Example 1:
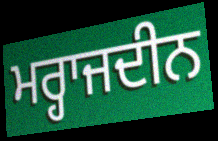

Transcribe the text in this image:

ਮਰ੍ਹਾਜਦੀਨ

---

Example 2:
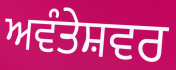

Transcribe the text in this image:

ਅਵੰਤੇਸ਼ਵਰ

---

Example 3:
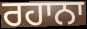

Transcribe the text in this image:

ਰਹਾਨਾ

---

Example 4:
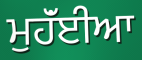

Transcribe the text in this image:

ਮੁਹੱਂਈਆ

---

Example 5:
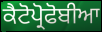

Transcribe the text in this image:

ਕੈਟੋਪ੍ਰੋਫੋਬੀਆ